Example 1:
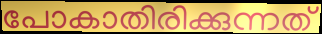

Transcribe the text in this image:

പോകാതിരിക്കുന്നത്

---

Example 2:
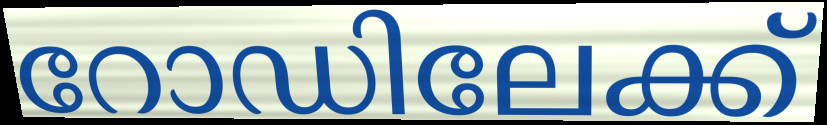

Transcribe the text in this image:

റോഡിലേക്ക്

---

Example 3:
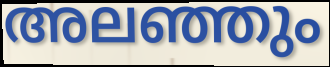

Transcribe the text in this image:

അലഞ്ഞും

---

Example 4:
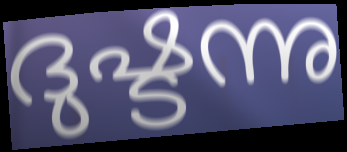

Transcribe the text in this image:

ദുഷ്ടന്നു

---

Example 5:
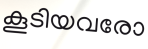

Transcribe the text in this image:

കൂടിയവരോ